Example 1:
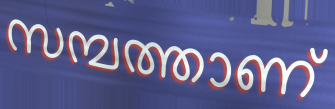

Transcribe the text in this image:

സമ്പത്താണ്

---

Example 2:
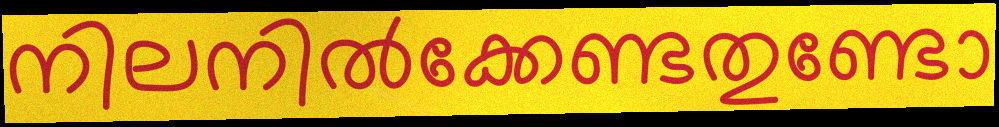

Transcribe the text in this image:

നിലനിൽക്കേണ്ടതുണ്ടോ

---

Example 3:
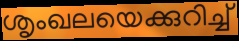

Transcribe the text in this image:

ശൃംഖലയെക്കുറിച്ച്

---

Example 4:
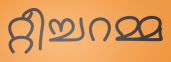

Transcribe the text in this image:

റ്റീച്ചറമ്മ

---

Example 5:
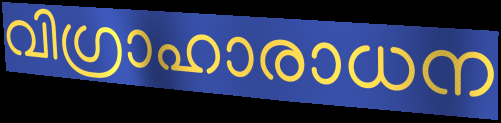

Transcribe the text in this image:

വിഗ്രാഹാരാധന